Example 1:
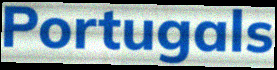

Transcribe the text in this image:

Portugals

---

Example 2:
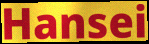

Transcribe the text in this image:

Hansei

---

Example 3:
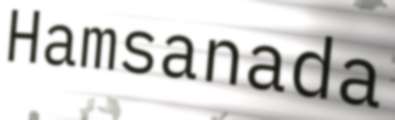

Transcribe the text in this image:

Hamsanada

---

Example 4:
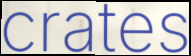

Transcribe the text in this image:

crates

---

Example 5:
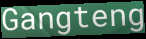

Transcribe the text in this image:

Gangteng